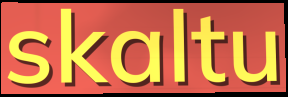
skaltu